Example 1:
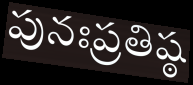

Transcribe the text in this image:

పునఃప్రతిష్ఠ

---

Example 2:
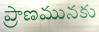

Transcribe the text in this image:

ప్రాణమునకు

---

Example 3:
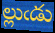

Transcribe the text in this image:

ల్లుఁడు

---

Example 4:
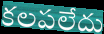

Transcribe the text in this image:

కలపలేదు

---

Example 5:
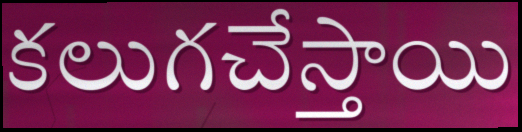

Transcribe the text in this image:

కలుగచేస్తాయి